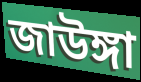
জাউঙ্গা